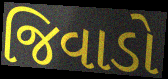
જિવાડો